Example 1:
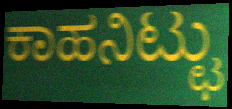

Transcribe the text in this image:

ಕಾಹನಿಟ್ಟು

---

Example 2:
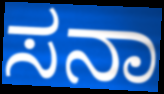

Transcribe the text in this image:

ಸನಾ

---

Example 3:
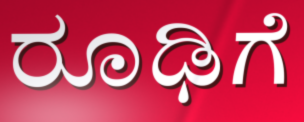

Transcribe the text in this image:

ರೂಢಿಗೆ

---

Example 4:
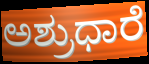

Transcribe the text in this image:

ಅಶ್ರುಧಾರೆ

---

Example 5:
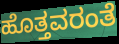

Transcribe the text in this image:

ಹೊತ್ತವರಂತೆ